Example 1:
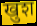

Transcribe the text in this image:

खुश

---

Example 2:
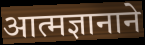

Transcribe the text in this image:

आत्मज्ञानाने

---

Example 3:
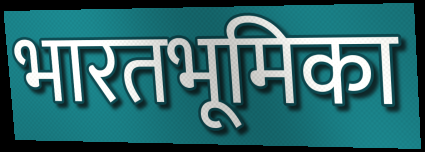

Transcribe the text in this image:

भारतभूमिका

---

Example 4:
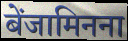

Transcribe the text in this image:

बेंजामिनना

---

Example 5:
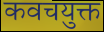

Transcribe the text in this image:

कवचयुक्त